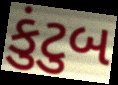
કુંટુબ